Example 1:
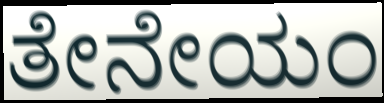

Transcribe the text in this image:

ತೇನೇಯಂ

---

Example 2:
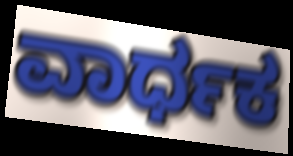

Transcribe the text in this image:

ವಾರ್ಧಕ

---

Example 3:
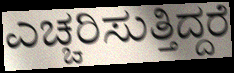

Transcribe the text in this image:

ಎಚ್ಚರಿಸುತ್ತಿದ್ದರೆ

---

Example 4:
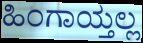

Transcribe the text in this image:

ಹಿಂಗಾಯ್ತಲ್ಲ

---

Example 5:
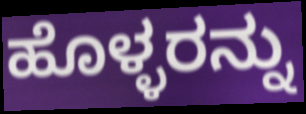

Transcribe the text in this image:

ಹೊಳ್ಳರನ್ನು